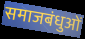
समाजबंधुओं